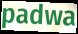
padwa